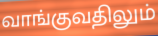
வாங்குவதிலும்